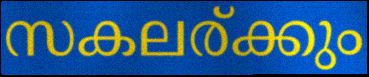
സകലര്ക്കും